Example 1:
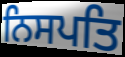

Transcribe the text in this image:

ਨਿਸਪਤਿ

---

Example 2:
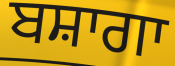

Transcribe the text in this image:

ਬਸ਼ਾਗਾ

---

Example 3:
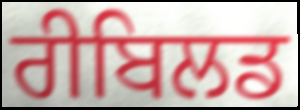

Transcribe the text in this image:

ਰੀਬਿਲਡ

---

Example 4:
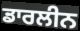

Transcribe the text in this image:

ਡਾਰਲੀਨ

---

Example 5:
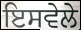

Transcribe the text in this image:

ਇਸਵੇਲੇ